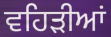
ਵਹਿੜੀਆਂ